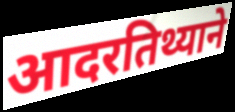
आदरतिथ्याने